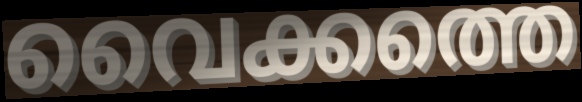
വൈക്കത്തെ